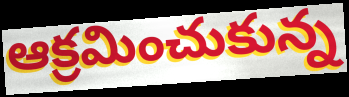
ఆక్రమించుకున్న